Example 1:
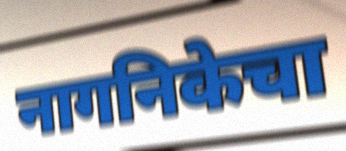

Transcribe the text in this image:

नागनिकेचा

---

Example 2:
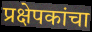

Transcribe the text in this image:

प्रक्षेपकांचा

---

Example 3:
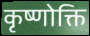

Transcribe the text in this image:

कृष्णोक्ति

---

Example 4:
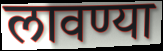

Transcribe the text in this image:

लावण्या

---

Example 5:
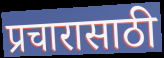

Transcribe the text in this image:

प्रचारासाठी